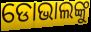
ଡୋଭାଲଙ୍କୁ